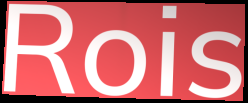
Rois